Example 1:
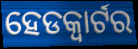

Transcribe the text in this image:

ହେଡକ୍ୱାର୍ଟର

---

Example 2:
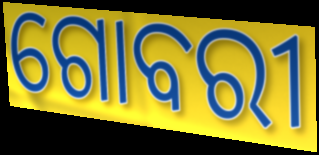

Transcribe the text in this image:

ଗୋବରୀ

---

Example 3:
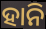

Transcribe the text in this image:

ହାନି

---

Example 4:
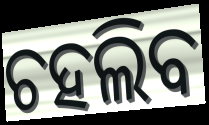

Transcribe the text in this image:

ଚହଲିବ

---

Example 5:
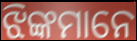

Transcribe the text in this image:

ଝିଙ୍କମାନେ